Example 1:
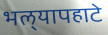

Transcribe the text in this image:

भल्यापहाटे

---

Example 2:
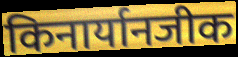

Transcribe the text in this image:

किनार्यानजीक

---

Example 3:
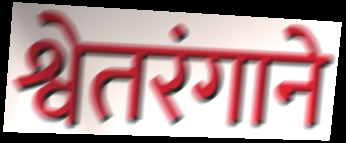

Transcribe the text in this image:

श्वेतरंगाने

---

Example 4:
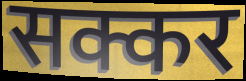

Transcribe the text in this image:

सक्कर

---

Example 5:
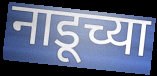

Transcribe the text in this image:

नाडूच्या